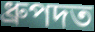
ধ্ৰুপদত